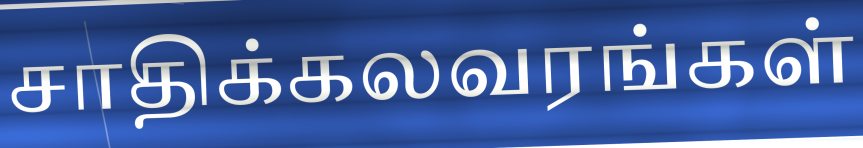
சாதிக்கலவரங்கள்